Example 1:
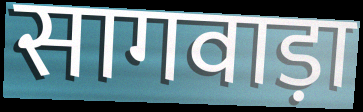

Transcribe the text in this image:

सागवाड़ा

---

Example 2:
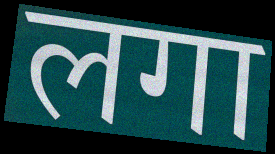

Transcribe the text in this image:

लगा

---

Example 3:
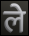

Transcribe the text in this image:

ले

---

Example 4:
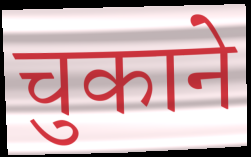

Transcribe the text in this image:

चुकाने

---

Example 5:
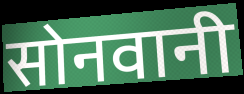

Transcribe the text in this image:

सोनवानी